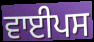
ਵਾਈਪਸ